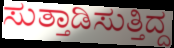
ಸುತ್ತಾಡಿಸುತ್ತಿದ್ದ